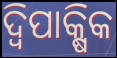
ଦ୍ବିପାକ୍ଷିକ